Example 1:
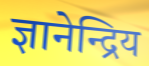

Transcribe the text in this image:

ज्ञानेन्द्रिय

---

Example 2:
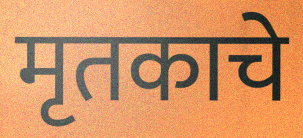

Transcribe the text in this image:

मृतकाचे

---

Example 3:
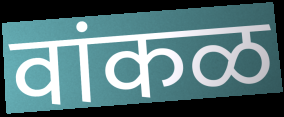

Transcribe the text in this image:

वांकळ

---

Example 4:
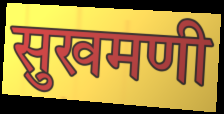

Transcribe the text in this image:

सुखमणी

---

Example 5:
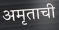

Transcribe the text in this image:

अमृताची